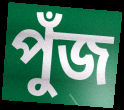
পুঁজ